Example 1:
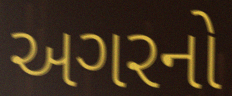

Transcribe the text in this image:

અગરનો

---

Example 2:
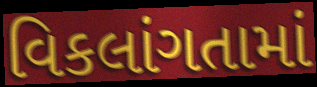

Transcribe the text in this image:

વિકલાંગતામાં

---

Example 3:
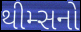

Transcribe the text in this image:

થીમ્સનો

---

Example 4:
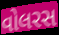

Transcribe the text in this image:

વોલરસ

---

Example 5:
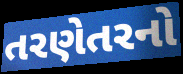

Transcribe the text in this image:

તરણેતરનો